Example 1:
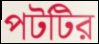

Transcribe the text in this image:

পটটির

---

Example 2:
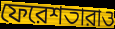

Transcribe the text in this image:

ফেরেশতারাও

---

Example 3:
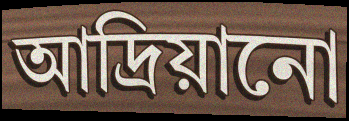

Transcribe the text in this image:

আদ্রিয়ানো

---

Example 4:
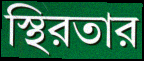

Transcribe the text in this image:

স্থিরতার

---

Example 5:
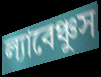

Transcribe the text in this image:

ল্যাবেঞ্চুস